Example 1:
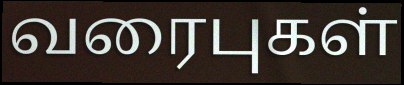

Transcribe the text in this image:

வரைபுகள்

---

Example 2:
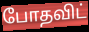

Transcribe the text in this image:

போதவிட்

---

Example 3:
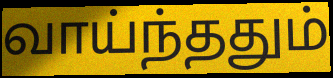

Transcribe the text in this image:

வாய்ந்ததும்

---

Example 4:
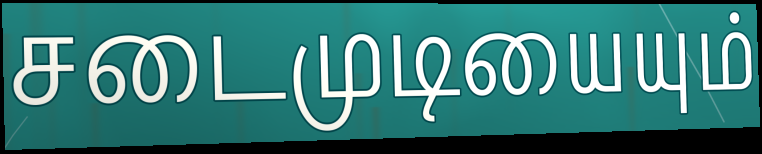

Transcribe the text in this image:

சடைமுடியையும்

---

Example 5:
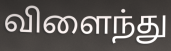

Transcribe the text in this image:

விளைந்து